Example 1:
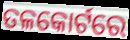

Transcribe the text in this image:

ତଳକୋର୍ଟରେ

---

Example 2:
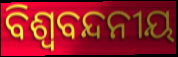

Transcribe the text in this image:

ବିଶ୍ୱବନ୍ଦନୀୟ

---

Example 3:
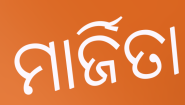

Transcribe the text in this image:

ମାର୍ଜିତା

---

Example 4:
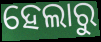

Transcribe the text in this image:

ହେଲାରୁ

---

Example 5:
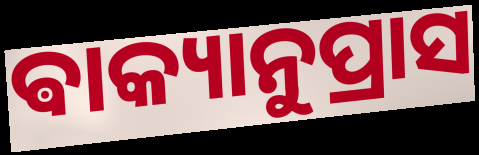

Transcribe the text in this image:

ଵାକ୍ୟାନୁପ୍ରାସ